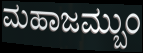
ಮಹಾಜಮ್ಬುಂ